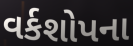
વર્કશોપના